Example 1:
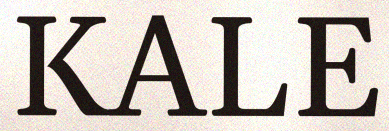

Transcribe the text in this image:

KALE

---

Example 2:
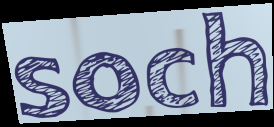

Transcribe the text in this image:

soch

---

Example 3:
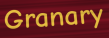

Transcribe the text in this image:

Granary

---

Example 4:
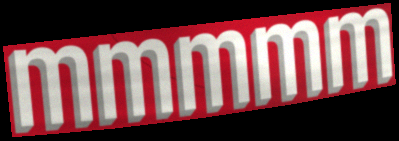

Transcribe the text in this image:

mmmmm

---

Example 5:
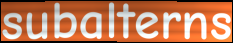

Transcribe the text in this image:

subalterns